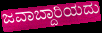
ಜವಾಬ್ದಾರಿಯದು